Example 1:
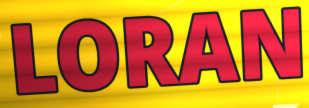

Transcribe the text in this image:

LORAN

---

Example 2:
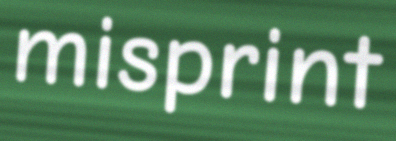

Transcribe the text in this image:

misprint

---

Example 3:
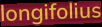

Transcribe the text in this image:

longifolius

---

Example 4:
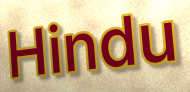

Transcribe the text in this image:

Hindu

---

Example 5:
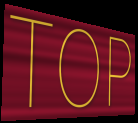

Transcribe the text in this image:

TOP